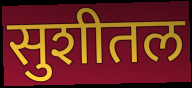
सुशीतल